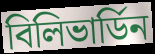
বিলিভার্ডিন